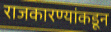
राजकारण्यांकडून